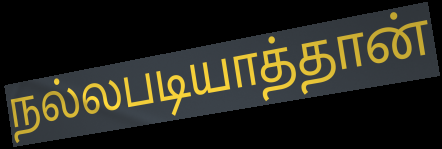
நல்லபடியாத்தான்